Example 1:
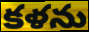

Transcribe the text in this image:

కళను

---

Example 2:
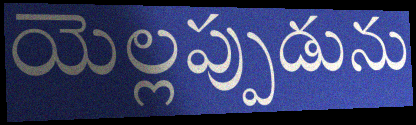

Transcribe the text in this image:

యెల్లప్పుడును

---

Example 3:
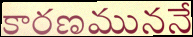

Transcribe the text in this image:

కారణముననే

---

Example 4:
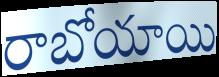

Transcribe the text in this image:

రాబోయాయి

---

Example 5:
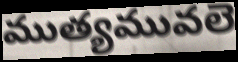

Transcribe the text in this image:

ముత్యమువలె